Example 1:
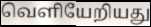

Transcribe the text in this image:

வெளியேறியது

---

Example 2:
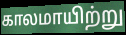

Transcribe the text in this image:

காலமாயிற்று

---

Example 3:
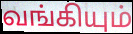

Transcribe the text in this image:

வங்கியும்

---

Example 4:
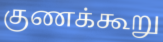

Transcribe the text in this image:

குணக்கூறு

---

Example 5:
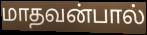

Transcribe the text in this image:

மாதவன்பால்